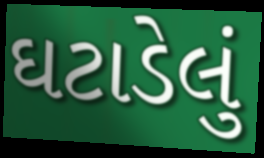
ઘટાડેલું